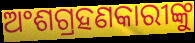
ଅଂଶଗ୍ରହଣକାରୀଙ୍କୁ